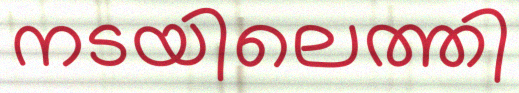
നടയിലെത്തി